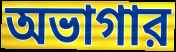
অভাগার